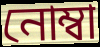
নোম্বা